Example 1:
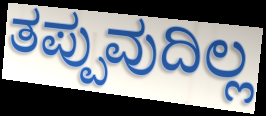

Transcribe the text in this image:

ತಪ್ಪುವುದಿಲ್ಲ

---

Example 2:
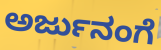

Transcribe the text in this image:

ಅರ್ಜುನಂಗೆ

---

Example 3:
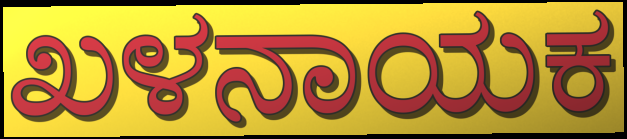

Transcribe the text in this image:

ಖಳನಾಯಕ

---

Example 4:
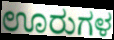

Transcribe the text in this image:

ಊರುಗಳ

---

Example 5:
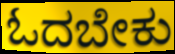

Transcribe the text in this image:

ಓದಬೇಕು